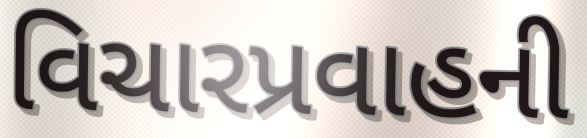
વિચારપ્રવાહની